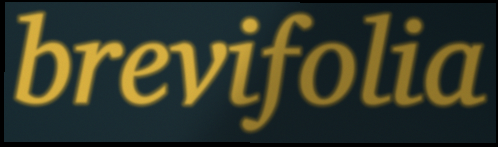
brevifolia